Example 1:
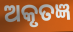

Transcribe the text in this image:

ଅକୃତଜ୍ଞ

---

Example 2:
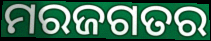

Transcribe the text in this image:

ମରଜଗତର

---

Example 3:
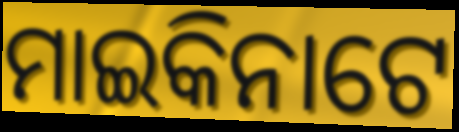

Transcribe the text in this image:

ମାଇକିନାଟେ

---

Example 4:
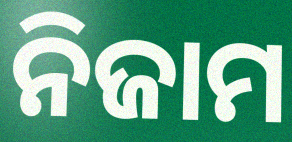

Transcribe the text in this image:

ନିଜାମ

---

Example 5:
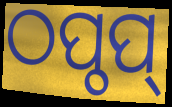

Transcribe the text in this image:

ଠପ୍ଠପ୍